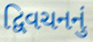
દ્વિવચનનું